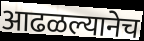
आढळल्यानेच